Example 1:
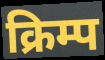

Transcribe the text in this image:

क्रिम्प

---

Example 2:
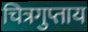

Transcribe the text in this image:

चित्रगुप्ताय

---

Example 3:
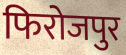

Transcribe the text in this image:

फिरोजपुर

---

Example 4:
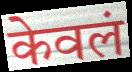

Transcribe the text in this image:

केवलं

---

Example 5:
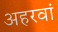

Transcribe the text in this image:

अहरवां